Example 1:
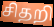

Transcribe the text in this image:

சிதறி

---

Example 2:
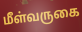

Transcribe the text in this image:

மீள்வருகை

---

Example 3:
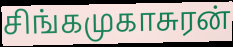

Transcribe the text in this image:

சிங்கமுகாசுரன்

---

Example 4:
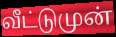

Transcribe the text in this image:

வீட்டுமுன்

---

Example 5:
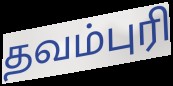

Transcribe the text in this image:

தவம்புரி